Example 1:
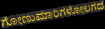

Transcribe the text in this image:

ಗೋಣುಮಾರಿಗಳೋಲಗದ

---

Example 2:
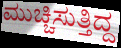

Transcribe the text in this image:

ಮುಚ್ಚಿಸುತ್ತಿದ್ದ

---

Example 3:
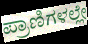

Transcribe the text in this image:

ಪ್ರಾಣಿಗಳಲ್ಲೇ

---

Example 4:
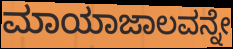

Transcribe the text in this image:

ಮಾಯಾಜಾಲವನ್ನೇ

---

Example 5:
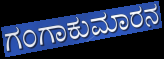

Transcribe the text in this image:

ಗಂಗಾಕುಮಾರನ